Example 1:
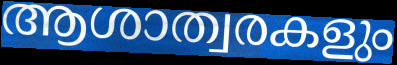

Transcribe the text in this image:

ആശാത്വരകളും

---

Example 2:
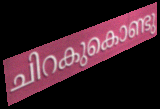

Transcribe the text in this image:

ചിറകുകൊണ്ടു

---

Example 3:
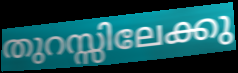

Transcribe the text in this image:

തുറസ്സിലേക്കു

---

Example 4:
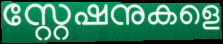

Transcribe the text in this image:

സ്റ്റേഷനുകളെ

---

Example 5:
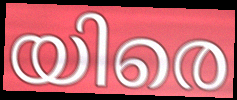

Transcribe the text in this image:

യിരെ